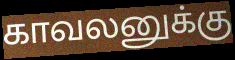
காவலனுக்கு